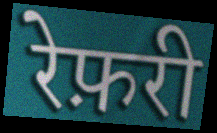
रेफ़री